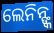
ଲେନିନ୍ଙ୍କ